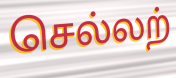
செல்லற்